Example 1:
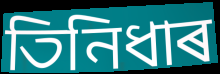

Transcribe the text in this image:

তিনিধাৰ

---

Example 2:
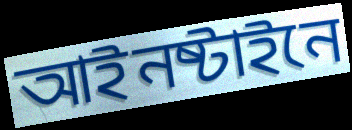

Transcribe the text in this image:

আইনষ্টাইনে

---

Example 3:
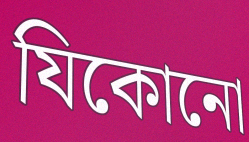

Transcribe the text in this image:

যিকোনো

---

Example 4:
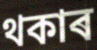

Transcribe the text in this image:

থকাৰ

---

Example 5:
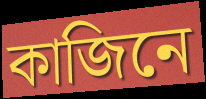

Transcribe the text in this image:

কাজিনে